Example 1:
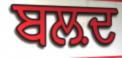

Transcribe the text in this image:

ਬਲ਼ਦ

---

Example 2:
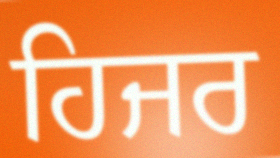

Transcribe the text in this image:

ਹਿਜਰ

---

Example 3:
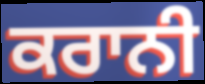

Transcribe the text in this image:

ਕਰਾਨੀ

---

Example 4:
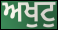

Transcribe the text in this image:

ਅਖੁਟੁ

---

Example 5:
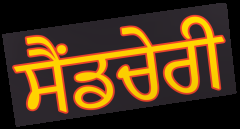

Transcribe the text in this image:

ਸੈਂਡਚੇਰੀ